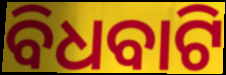
ବିଧବାଟି